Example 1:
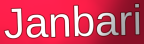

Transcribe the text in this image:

Janbari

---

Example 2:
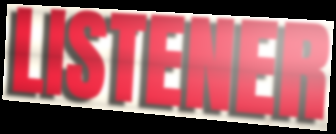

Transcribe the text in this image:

LISTENER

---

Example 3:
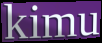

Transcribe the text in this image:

kimu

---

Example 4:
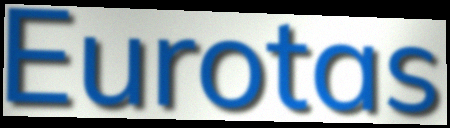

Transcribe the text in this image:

Eurotas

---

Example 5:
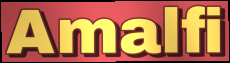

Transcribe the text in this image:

Amalfi